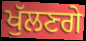
ਖੁੱਲਣਗੇ